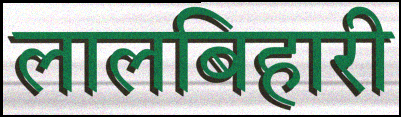
लालबिहारी